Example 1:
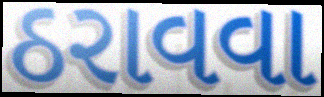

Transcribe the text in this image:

ઠરાવવા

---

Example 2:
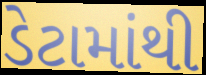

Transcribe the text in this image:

ડેટામાંથી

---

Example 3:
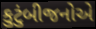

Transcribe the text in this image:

કુટુંબીજનોએ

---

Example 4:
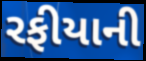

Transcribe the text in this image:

રફીયાની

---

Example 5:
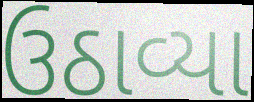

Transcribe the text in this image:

ઉઠાવ્યા